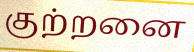
குற்றனை